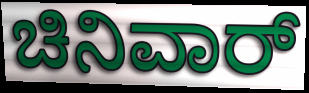
ಚಿನಿವಾರ್